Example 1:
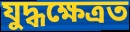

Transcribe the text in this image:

যুদ্ধক্ষেত্ৰত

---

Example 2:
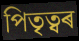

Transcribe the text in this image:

পিতৃত্বৰ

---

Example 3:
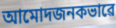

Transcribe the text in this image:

আমোদজনকভাৱে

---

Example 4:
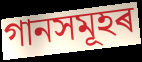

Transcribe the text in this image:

গানসমূহৰ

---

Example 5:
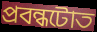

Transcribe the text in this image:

প্ৰবন্ধটোত